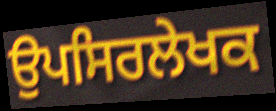
ਉਪਸਿਰਲੇਖਕ